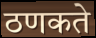
ठणकते